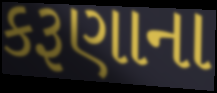
કરૂણાના